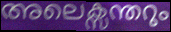
അലെക്സന്തറും